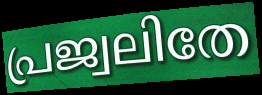
പ്രജ്വലിതേ